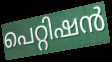
പെറ്റിഷൻ